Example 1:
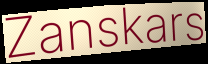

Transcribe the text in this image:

Zanskars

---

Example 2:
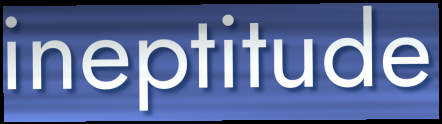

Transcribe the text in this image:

ineptitude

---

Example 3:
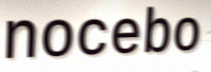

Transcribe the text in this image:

nocebo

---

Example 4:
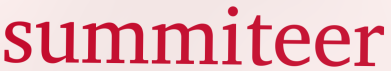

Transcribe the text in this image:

summiteer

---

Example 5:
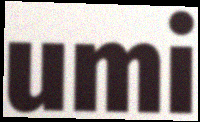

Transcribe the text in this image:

umi